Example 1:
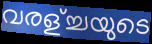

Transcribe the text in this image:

വരള്ച്ചയുടെ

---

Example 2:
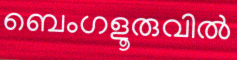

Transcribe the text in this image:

ബെംഗളൂരുവിൽ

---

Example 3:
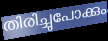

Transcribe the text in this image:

തിരിച്ചുപോക്കും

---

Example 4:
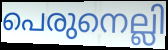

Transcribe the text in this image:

പെരുനെല്ലി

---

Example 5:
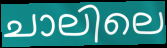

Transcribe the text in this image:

ചാലിലെ